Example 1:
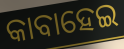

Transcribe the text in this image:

କାବାହେଇ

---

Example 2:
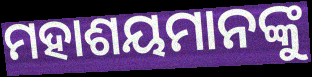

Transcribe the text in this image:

ମହାଶୟମାନଙ୍କୁ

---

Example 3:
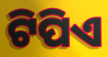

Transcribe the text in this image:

ଟିପିଏ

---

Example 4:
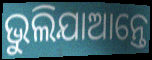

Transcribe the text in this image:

ଭୁଲିଯାଆନ୍ତେ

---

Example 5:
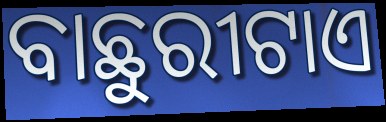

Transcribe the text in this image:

ବାଛୁରୀଟାଏ